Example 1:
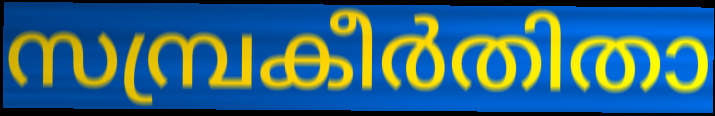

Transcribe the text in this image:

സമ്പ്രകീർതിതാ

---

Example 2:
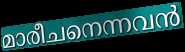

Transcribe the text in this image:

മാരീചനെന്നവൻ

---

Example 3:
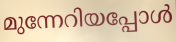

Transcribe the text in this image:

മുന്നേറിയപ്പോൾ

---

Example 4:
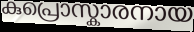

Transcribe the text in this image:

കുപ്രൊസ്കാരനായ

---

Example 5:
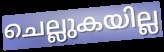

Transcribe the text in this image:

ചെല്ലുകയില്ല